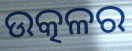
ଉତ୍କଳର